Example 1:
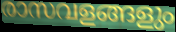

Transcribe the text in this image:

രാസവളങ്ങളും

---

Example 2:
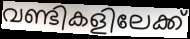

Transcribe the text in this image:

വണ്ടികളിലേക്ക്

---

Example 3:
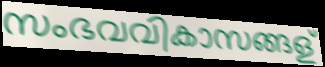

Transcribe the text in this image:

സംഭവവികാസങ്ങള്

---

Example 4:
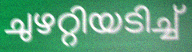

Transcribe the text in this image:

ചുഴറ്റിയടിച്ച്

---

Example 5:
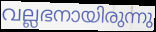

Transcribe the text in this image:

വല്ലഭനായിരുന്നു